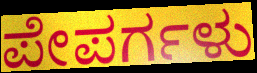
ಪೇಪರ್ಗಳು